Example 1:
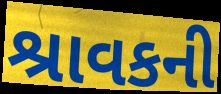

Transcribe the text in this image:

શ્રાવકની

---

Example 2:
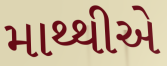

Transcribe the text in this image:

માથ્થીએ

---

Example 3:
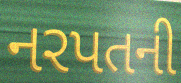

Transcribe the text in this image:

નરપતની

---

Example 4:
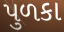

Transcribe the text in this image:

પુળકા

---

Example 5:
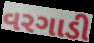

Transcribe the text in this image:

વરગાડી